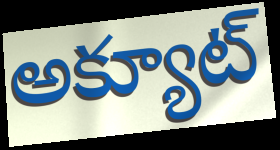
అక్యూట్